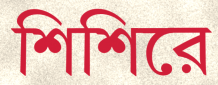
শিশিরে